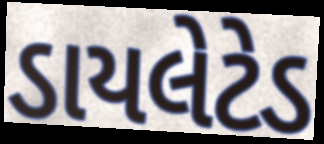
ડાયલેટેડ